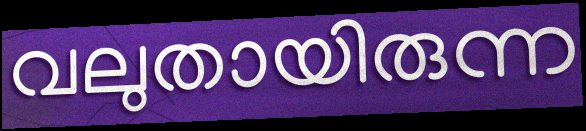
വലുതായിരുന്ന